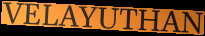
VELAYUTHAN